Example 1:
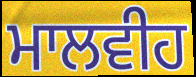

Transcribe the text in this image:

ਮਾਲਵੀਹ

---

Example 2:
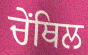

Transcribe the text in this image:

ਚੇਂਥਿਲ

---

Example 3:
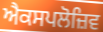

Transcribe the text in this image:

ਐਕਸਪਲੋਜ਼ਿਵ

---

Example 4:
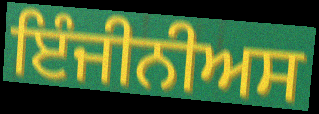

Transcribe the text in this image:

ਇੰਜੀਨੀਅਸ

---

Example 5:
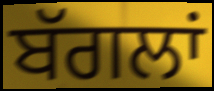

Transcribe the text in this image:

ਬੱਗਲਾਂ